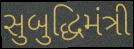
સુબુદ્ધિમંત્રી